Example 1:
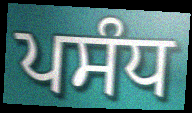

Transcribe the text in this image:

ਪਸੰਧ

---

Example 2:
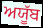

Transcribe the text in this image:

ਅਯੂੱਬ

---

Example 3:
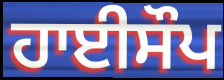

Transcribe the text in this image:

ਹਾਈਸੌਪ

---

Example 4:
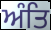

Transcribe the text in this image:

ਅੰਤਿ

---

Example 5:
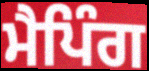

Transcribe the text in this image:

ਮੈਪਿੰਗ